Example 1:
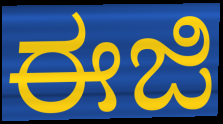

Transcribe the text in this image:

ಈಜಿ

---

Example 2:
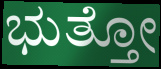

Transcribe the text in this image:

ಭುತ್ತೋ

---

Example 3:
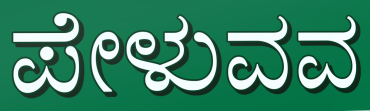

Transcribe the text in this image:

ಪೇಳುವವ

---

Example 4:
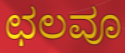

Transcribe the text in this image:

ಛಲವೂ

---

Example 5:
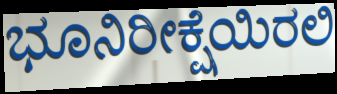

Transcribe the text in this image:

ಭೂನಿರೀಕ್ಷೆಯಿರಲಿ